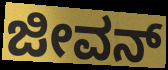
ಜೀವನ್